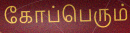
கோப்பெரும்